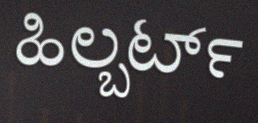
ಹಿಲ್ಬರ್ಟ್